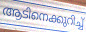
ആടിനെക്കുറിച്ച്